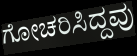
ಗೋಚರಿಸಿದ್ದವು